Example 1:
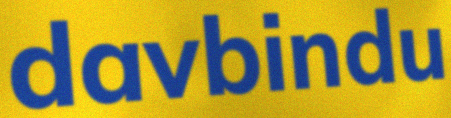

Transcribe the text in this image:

davbindu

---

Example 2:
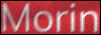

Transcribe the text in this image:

Morin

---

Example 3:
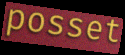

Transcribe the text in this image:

posset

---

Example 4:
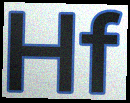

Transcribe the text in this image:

Hf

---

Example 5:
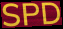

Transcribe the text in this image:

SPD